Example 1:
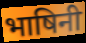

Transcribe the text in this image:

भाषिनी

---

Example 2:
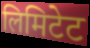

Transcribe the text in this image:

लिमिटेट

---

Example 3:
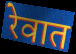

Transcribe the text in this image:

रेवात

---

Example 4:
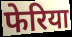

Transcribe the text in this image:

फेरिया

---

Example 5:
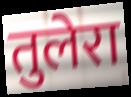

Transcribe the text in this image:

तुलेरा